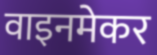
वाइनमेकर